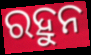
ରହୁନ